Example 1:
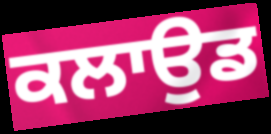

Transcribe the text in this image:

ਕਲਾਉਡ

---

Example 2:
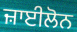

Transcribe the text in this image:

ਜ਼ਾਈਲੋਨ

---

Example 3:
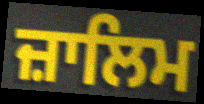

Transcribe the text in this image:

ਜ਼ਾਲਿਮ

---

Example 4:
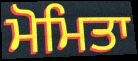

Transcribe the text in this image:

ਮੋਮਿਤਾ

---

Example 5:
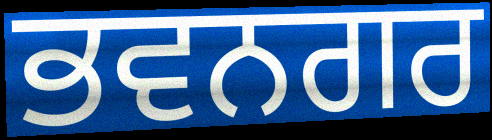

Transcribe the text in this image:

ਭਵਨਗਰ